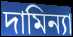
দামিন্যা